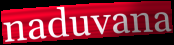
naduvana